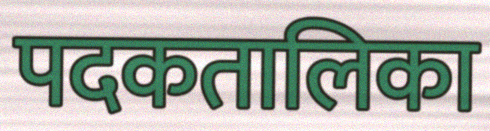
पदकतालिका